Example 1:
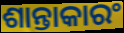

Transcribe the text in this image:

ଶାନ୍ତାକାରଂ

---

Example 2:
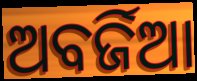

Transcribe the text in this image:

ଅବର୍ଜିଆ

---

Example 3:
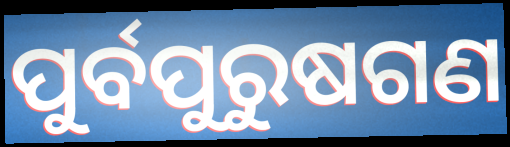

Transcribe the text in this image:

ପୁର୍ବପୁରୁଷଗଣ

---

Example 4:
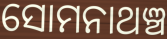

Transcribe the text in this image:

ସୋମନାଥଞ୍ଚ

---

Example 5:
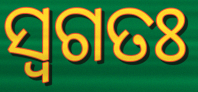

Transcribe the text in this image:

ସ୍ଵଗତଃ